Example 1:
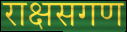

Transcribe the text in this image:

राक्षसगण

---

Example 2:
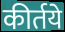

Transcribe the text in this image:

कीर्तये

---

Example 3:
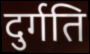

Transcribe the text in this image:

दुर्गति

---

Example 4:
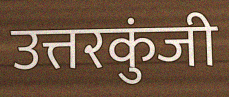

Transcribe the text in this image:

उत्तरकुंजी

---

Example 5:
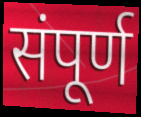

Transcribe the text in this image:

संपूर्ण